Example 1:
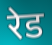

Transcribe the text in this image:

रेड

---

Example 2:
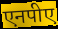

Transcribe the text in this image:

एनपीए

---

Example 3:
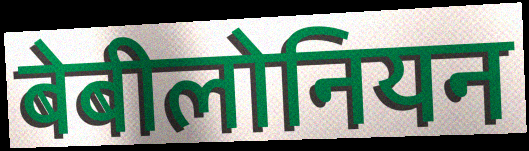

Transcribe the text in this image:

बेबीलोनियन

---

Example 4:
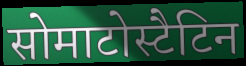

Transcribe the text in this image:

सोमाटोस्टैटिन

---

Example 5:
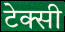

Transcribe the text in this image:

टेक्‍सी